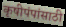
कृषीपंपांसाठी